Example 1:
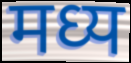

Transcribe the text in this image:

मध्‍य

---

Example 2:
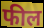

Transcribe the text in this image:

फील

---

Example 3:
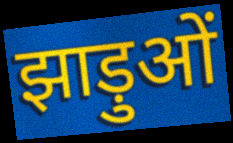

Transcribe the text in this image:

झाड़ुओं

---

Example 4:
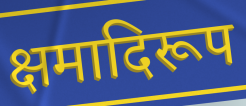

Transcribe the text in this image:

क्षमादिरूप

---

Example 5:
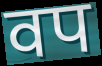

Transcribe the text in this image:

वप